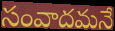
సంవాదమనే